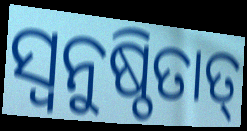
ସ୍ଵନୁଷ୍ଠିତାତ୍